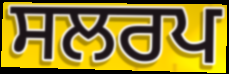
ਸਲਰਪ